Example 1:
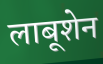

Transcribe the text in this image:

लाबूशेन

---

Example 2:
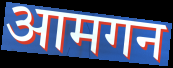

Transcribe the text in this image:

आमगन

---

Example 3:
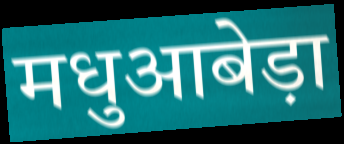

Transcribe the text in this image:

मधुआबेड़ा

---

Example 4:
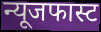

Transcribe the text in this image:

न्यूजफास्ट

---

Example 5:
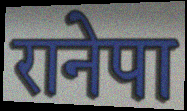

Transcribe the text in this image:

रानेपा